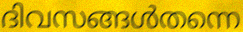
ദിവസങ്ങൾതന്നെ